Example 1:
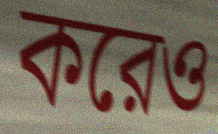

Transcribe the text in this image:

করেও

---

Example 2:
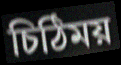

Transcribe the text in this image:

চিঠিময়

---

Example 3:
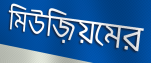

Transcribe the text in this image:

মিউজ়িয়মের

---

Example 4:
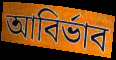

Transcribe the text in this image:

আবির্ভাব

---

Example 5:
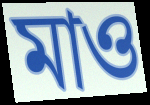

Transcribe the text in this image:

মাও